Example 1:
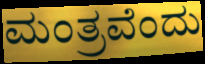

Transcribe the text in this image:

ಮಂತ್ರವೆಂದು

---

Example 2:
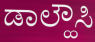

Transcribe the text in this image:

ಡಾಲ್ಹೌಸಿ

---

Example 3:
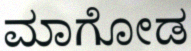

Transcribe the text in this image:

ಮಾಗೋಡ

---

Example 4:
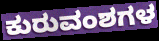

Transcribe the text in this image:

ಕುರುವಂಶಗಳ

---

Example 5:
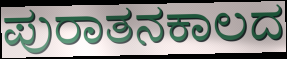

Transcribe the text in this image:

ಪುರಾತನಕಾಲದ